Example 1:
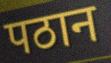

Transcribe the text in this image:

पठान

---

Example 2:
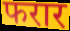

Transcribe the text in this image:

फरार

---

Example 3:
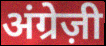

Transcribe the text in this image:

अंग्रेज़ी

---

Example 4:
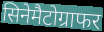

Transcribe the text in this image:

सिनेमैटोग्राफर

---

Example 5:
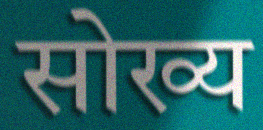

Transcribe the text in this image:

सोख्य